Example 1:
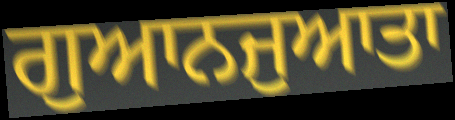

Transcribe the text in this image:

ਗੁਆਨਜੁਆਤਾ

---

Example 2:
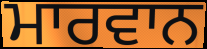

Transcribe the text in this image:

ਮਾਰਵਾਨ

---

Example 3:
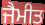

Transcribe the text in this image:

ਜੈਮੀਤ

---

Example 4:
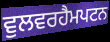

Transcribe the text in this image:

ਵੁਲਵਰਹੈਮਪਟਨ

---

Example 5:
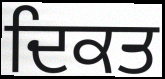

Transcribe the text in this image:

ਦਿਕਤ